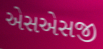
એસએસજી